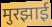
मुरझाई